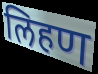
लिहण